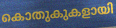
കൊതുകുകളായി